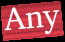
Any